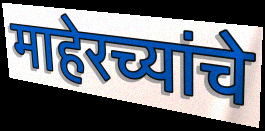
माहेरच्यांचे